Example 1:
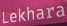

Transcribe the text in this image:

Lekhara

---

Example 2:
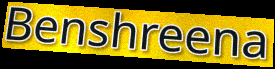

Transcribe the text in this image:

Benshreena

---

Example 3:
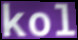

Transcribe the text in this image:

kol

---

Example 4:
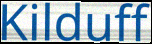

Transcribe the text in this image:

Kilduff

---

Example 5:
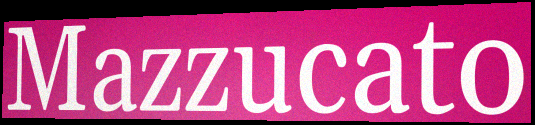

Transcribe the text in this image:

Mazzucato